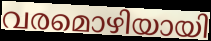
വരമൊഴിയായി